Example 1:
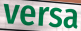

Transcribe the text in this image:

versa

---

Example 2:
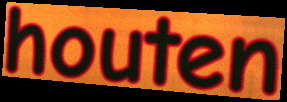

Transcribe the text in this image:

houten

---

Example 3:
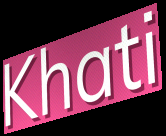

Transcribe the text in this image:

Khati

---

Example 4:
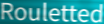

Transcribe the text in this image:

Rouletted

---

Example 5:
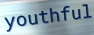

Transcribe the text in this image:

youthful